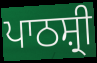
ਪਾਠਸ਼੍ਰੀ